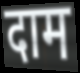
दाम